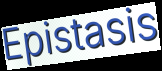
Epistasis